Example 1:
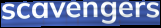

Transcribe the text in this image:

scavengers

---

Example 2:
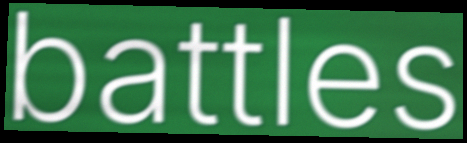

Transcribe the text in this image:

battles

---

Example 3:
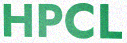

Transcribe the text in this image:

HPCL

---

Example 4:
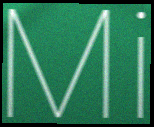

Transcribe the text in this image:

Mi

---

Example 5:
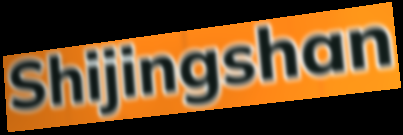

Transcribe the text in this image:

Shijingshan